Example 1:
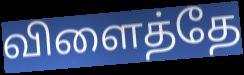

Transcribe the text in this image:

விளைத்தே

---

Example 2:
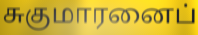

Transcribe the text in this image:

சுகுமாரனைப்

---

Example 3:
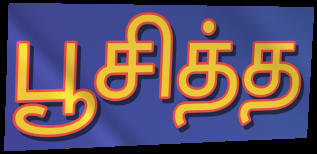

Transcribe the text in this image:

பூசித்த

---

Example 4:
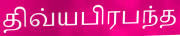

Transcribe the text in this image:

திவ்யபிரபந்த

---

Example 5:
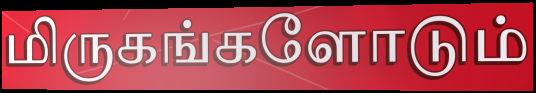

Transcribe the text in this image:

மிருகங்களோடும்